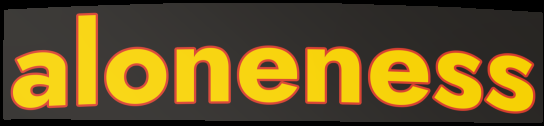
aloneness